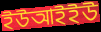
ইউআইইউ